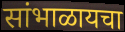
सांभाळायचा